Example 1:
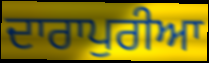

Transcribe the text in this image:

ਦਾਰਾਪੁਰੀਆ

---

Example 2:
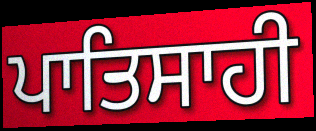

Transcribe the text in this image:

ਪਾਤਿਸਾਹੀ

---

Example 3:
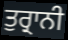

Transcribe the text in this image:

ਤੁਰ੍ਰਾਨੀ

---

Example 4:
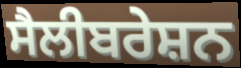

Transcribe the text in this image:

ਸੈਲੀਬਰੇਸ਼ਨ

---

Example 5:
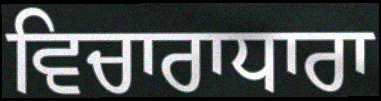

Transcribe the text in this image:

ਵਿਚਾਰਾਧਾਰਾ